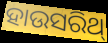
ହାଉସରିଥ୍